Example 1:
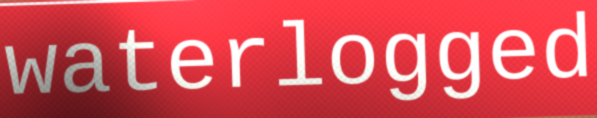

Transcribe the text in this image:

waterlogged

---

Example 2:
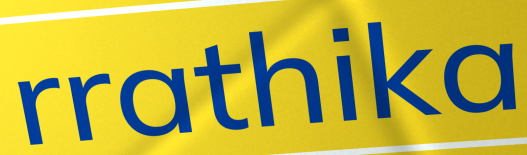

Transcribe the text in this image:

rrathika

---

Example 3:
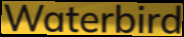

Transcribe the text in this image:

Waterbird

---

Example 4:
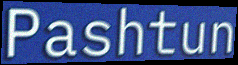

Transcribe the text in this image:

Pashtun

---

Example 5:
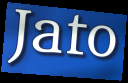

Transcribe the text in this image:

Jato